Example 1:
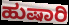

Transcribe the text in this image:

ಹುಷಾರಿ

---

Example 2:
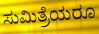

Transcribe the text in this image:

ಸುಮಿತ್ರೆಯರೂ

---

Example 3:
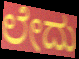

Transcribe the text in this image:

ಲೇದು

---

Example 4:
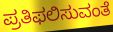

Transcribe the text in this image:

ಪ್ರತಿಫಲಿಸುವಂತೆ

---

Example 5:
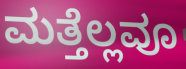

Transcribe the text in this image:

ಮತ್ತೆಲ್ಲವೂ